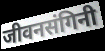
जीवनसंगिनी